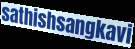
sathishsangkavi